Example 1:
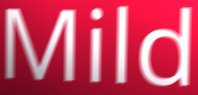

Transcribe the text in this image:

Mild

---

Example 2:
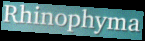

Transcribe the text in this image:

Rhinophyma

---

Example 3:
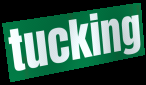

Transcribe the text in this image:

tucking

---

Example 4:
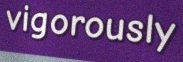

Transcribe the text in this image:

vigorously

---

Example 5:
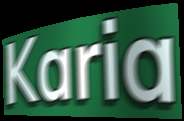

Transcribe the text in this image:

Karia